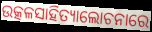
ଉତ୍କଳସାହିତ୍ୟାଲୋଚନାରେ